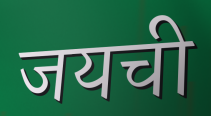
जयची